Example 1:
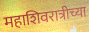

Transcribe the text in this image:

महाशिवरात्रीच्या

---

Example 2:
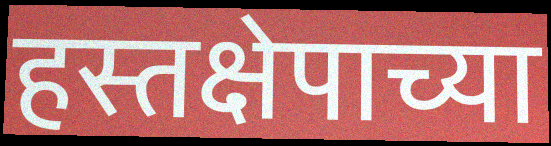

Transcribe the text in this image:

हस्तक्षेपाच्या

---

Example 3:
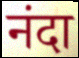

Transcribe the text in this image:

नंदा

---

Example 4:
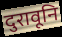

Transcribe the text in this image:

दुरावूनि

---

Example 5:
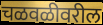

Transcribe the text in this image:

चळवळीवरील